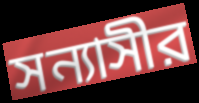
সন্যাসীর